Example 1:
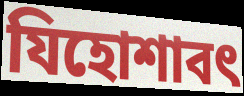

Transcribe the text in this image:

যিহোশাবৎ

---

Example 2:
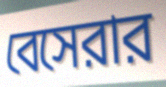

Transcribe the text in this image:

বেসেরার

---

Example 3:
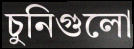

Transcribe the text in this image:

চুনিগুলো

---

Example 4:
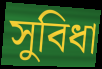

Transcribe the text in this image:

সুবিধা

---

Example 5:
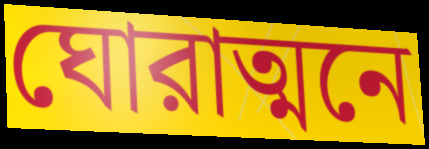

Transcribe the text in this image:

ঘোরাত্মনে